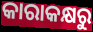
କାରାକକ୍ଷରୁ